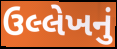
ઉલ્લેખનું